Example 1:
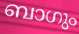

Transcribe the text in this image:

ബാഗും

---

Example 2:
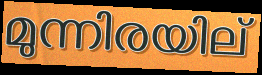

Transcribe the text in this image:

മുന്നിരയില്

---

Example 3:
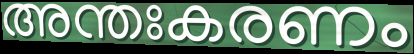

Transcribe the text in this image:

അന്തഃകരണം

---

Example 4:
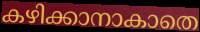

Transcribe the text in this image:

കഴിക്കാനാകാതെ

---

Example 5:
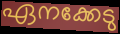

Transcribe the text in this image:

ഏനക്കേടു